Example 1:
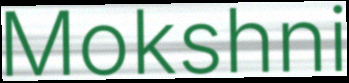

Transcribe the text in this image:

Mokshni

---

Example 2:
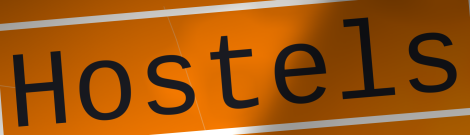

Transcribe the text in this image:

Hostels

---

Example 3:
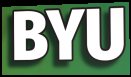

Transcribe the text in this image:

BYU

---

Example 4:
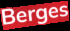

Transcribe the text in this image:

Berges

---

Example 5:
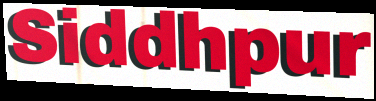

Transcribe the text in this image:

Siddhpur